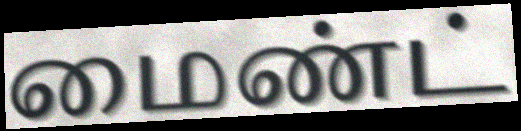
மைண்ட்